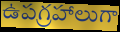
ఉపగ్రహాలుగా